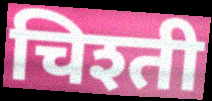
चिश्ती